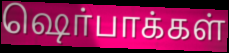
ஷெர்பாக்கள்